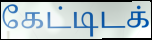
கேட்டிடக்